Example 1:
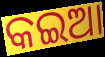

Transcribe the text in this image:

କଇଆ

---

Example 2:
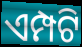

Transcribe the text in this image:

ଏମ୍ପଟି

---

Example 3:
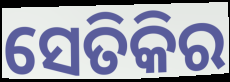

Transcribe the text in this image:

ସେତିକିର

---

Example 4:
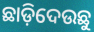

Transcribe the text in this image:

ଛାଡ଼ିଦେଉଛୁ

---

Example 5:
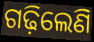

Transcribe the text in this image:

ଗଢ଼ିଲେଣି